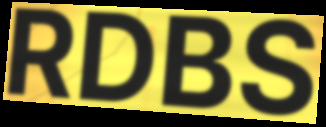
RDBS